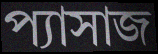
প্যাসাজ